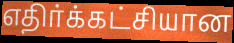
எதிர்க்கட்சியான